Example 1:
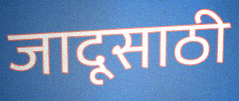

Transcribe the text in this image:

जादूसाठी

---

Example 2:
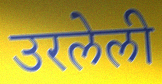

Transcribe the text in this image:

उरलेली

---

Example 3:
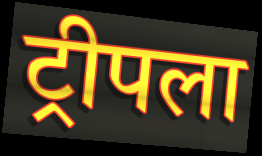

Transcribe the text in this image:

ट्रीपला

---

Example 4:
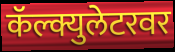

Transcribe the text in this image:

कॅल्क्युलेटरवर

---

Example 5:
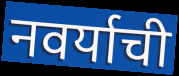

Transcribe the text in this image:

नवर्याची